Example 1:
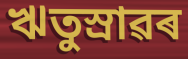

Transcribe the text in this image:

ঋতুস্ৰাৱৰ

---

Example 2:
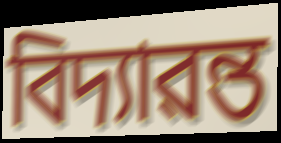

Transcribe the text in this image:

বিদ্যাৱন্ত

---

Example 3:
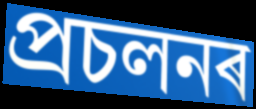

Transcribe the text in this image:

প্ৰচলনৰ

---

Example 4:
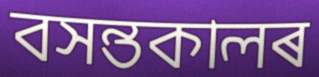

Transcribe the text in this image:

বসন্তকালৰ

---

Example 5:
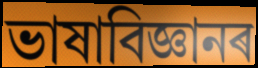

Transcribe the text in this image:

ভাষাবিজ্ঞানৰ